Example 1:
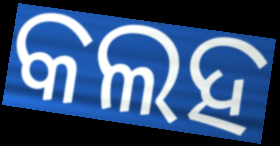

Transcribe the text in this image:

କଲହ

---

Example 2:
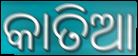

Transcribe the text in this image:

କାତିଆ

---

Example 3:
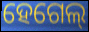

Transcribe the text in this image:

ହେଗେଲ୍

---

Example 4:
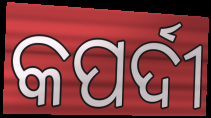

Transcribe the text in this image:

କପର୍ଦୀ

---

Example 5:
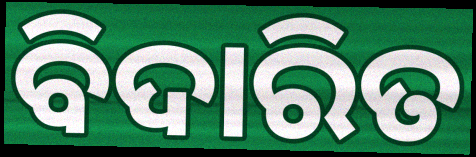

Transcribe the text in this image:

ବିଦାରିତ